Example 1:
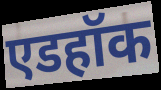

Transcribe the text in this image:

एडहॉक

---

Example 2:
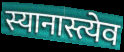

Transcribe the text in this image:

स्यानास्त्येव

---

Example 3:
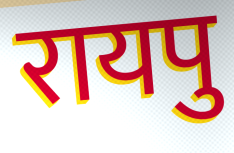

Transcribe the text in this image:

रायपु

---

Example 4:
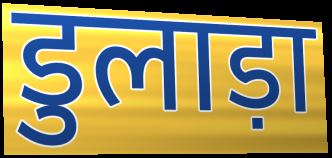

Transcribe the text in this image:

डुलाड़ा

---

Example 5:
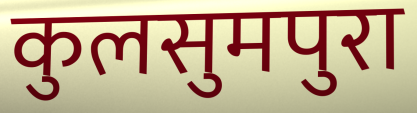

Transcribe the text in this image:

कुलसुमपुरा